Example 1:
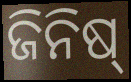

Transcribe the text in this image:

ଜିନିଷ୍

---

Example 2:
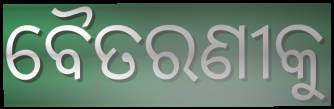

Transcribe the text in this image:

ବୈତରଣୀକୁ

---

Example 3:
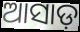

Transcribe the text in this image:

ଆସାଡ଼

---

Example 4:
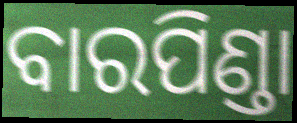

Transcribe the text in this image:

ବାରପିଣ୍ଡା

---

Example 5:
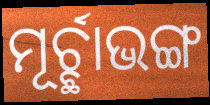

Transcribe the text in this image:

ମୂର୍ଚ୍ଛାଭଙ୍ଗ